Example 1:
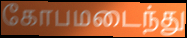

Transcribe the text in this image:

கோபமடைந்து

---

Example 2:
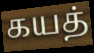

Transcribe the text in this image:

கயத்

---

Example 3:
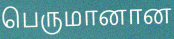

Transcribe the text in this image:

பெருமானான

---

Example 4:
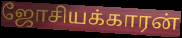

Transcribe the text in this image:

ஜோசியக்காரன்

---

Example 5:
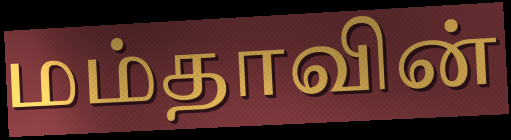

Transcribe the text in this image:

மம்தாவின்